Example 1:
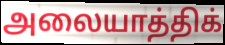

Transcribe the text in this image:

அலையாத்திக்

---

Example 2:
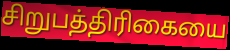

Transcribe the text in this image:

சிறுபத்திரிகையை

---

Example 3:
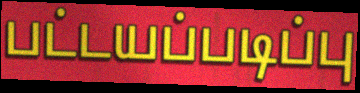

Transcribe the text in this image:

பட்டயப்படிப்பு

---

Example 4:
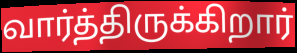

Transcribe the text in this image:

வார்த்திருக்கிறார்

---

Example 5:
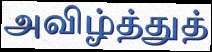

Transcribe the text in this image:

அவிழ்த்துத்